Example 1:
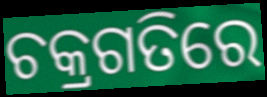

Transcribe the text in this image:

ଚକ୍ରଗତିରେ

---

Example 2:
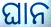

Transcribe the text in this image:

ଘାନ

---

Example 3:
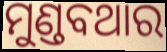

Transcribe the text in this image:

ମୁଣ୍ଡବଥାର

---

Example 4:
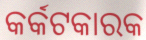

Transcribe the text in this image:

କର୍କଟକାରକ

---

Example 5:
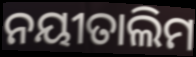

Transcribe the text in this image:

ନୟୀତାଲିମ